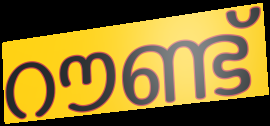
റൗണ്ട്